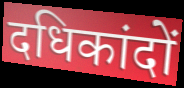
दधिकांदों